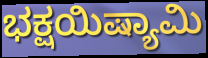
ಭಕ್ಷಯಿಷ್ಯಾಮಿ